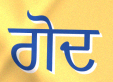
ਗੋਦ